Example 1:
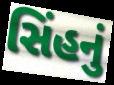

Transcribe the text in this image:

સિંહનું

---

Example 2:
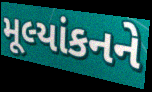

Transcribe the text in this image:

મૂલ્યાંકનને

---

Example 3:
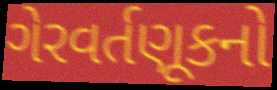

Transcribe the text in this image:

ગેરવર્તણૂકનો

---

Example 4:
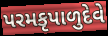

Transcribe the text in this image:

પરમકૃપાળુદેવે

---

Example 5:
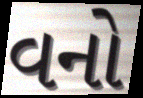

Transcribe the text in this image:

વનો